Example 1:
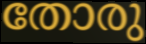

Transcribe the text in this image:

തോരു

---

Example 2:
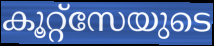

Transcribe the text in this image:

കൂറ്റ്സേയുടെ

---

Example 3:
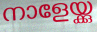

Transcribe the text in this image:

നാളേയ്ക്കു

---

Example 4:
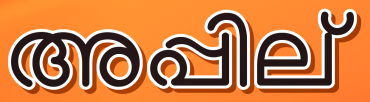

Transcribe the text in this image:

അപ്പില്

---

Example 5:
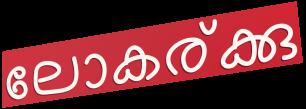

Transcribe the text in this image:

ലോകര്ക്കു